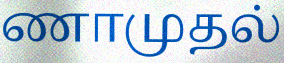
ணாமுதல்